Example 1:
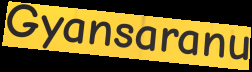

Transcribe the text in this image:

Gyansaranu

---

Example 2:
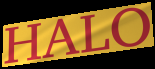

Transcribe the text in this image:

HALO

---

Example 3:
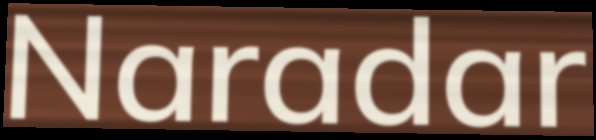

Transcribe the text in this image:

Naradar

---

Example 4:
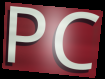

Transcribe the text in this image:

PC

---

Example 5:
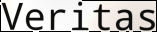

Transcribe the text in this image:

Veritas